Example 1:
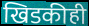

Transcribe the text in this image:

खिडकीही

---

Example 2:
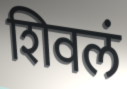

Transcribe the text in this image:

शिवलं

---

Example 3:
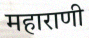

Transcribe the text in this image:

महाराणी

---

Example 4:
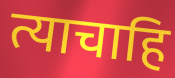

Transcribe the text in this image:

त्याचाहि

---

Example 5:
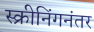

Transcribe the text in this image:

स्क्रीनिंगनंतर